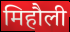
मिहौली